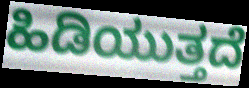
ಹಿಡಿಯುತ್ತದೆ